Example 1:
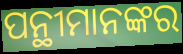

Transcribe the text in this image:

ପନ୍ଥୀମାନଙ୍କର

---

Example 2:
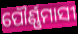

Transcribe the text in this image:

ପୌର୍ଣ୍ଣମାସୀ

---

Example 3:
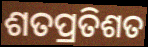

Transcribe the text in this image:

ଶତପ୍ରତିଶତ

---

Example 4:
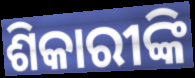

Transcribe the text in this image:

ଶିକାରୀଙ୍କି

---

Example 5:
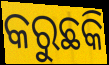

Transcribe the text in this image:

କରୁଛକି